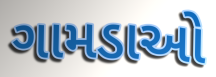
ગામડાઓ